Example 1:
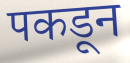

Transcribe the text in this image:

पकडून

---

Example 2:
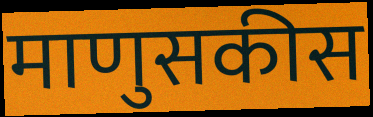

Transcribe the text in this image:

माणुसकीस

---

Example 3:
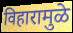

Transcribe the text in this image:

विहारामुळे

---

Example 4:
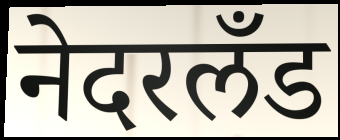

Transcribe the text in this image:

नेदरलँड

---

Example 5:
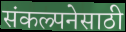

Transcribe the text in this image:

संकल्पनेसाठी